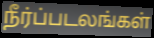
நீர்ப்படலங்கள்